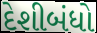
દેશીબંધો